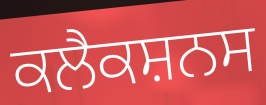
ਕਲੈਕਸ਼ਨਸ